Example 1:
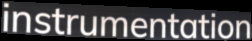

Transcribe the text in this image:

instrumentation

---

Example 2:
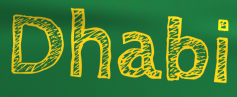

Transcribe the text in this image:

Dhabi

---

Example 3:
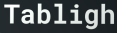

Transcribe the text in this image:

Tabligh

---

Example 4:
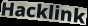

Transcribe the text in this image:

Hacklink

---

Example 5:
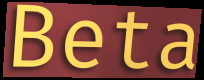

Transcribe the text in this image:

Beta